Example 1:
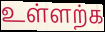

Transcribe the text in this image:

உள்ளற்க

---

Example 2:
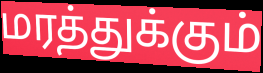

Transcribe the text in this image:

மரத்துக்கும்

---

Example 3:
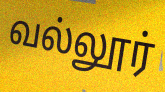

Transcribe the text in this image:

வல்லூர்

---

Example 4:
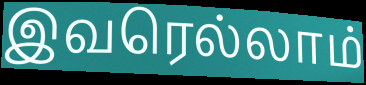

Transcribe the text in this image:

இவரெல்லாம்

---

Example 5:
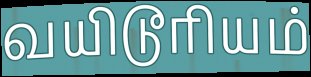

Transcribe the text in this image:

வயிடூரியம்